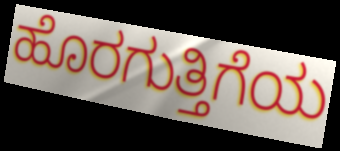
ಹೊರಗುತ್ತಿಗೆಯ